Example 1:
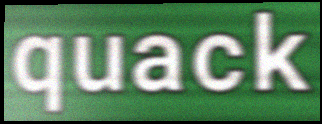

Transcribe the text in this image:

quack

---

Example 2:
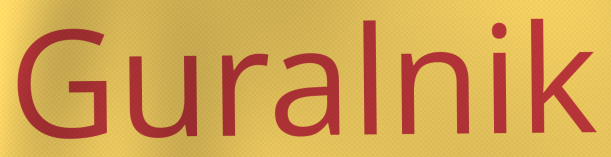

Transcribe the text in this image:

Guralnik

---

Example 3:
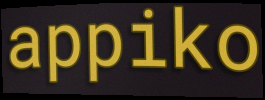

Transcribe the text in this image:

appiko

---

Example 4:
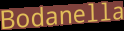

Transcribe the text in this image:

Bodanella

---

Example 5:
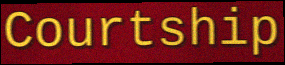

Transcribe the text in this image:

Courtship